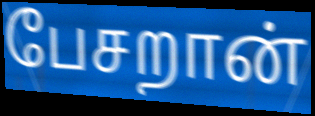
பேசறான்